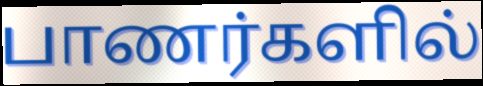
பாணர்களில்